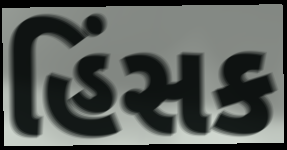
હિંસક